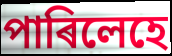
পাৰিলেহে